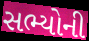
સભ્યોની